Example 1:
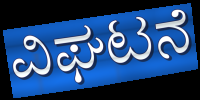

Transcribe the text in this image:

ವಿಘಟನೆ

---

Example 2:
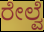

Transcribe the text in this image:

ರೇಲ್ವೆ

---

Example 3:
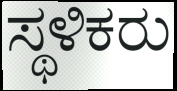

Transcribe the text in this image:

ಸ್ಥಳಿಕರು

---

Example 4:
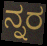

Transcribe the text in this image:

ನ್ನರ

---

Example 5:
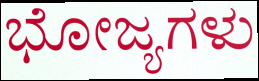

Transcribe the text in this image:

ಭೋಜ್ಯಗಳು